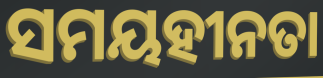
ସମୟହୀନତା